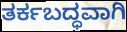
ತರ್ಕಬದ್ಧವಾಗಿ